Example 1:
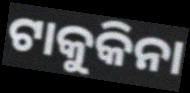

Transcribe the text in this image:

ଟାକୁକିନା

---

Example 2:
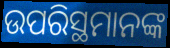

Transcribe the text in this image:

ଉପରିସ୍ଥମାନଙ୍କ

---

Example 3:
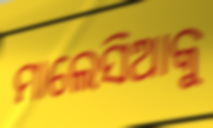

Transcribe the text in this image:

ମାଲେସିଆକୁ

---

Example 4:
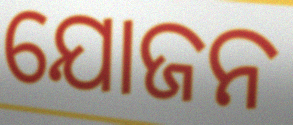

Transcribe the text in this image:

ଯୋଜନ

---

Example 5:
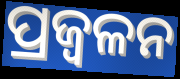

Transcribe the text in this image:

ପ୍ରଜ୍ବଳନ